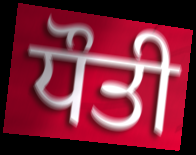
ਧੌਤੀ